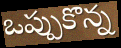
ఒప్పుకొన్న